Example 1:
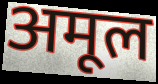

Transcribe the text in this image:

अमूल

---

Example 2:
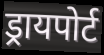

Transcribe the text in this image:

ड्रायपोर्ट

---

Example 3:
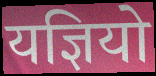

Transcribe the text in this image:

यज्ञियो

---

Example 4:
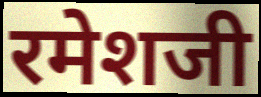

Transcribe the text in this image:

रमेशजी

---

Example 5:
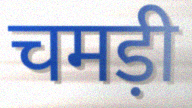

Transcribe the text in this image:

चमड़ी